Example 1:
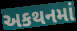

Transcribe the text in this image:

અકથનમાં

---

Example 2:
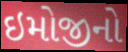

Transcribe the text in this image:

ઇમોજીનો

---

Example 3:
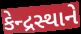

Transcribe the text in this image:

કેન્દ્રસ્થાને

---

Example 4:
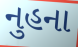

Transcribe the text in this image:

નુહના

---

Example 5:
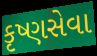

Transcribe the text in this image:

કૃષ્ણસેવા